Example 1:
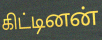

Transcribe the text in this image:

கிட்டினன்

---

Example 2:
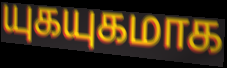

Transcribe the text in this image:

யுகயுகமாக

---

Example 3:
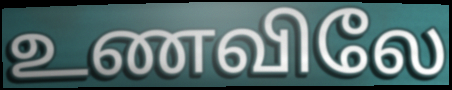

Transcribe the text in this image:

உணவிலே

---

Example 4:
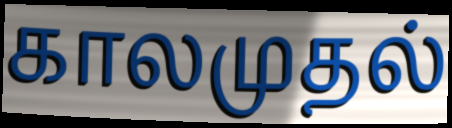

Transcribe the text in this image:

காலமுதல்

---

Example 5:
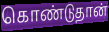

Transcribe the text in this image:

கொண்டுதான்